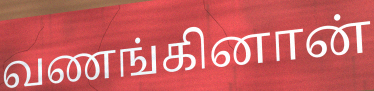
வணங்கினான்